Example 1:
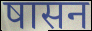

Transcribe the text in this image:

षासन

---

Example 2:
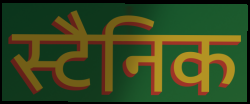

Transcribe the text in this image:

स्टैनिक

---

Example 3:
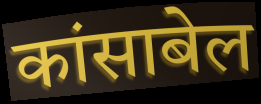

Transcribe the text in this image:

कांसाबेल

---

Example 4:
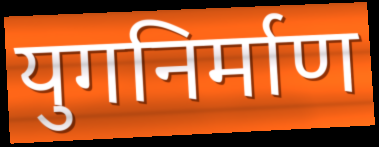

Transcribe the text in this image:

युगनिर्माण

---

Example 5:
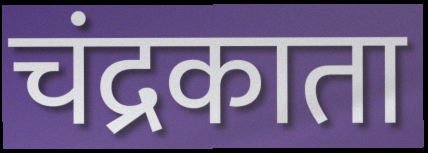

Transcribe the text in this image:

चंद्रकाता